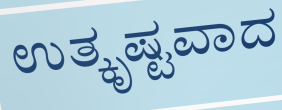
ಉತ್ಕೃಷ್ಟವಾದ